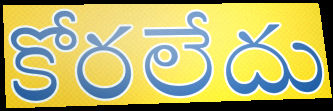
కోరలేదు